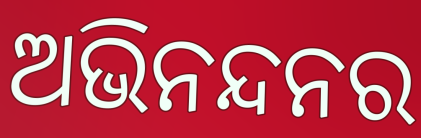
ଅଭିନନ୍ଦନର